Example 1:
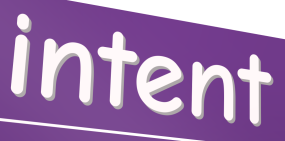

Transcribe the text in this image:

intent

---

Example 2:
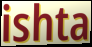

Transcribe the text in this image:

ishta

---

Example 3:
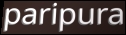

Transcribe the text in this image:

paripura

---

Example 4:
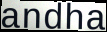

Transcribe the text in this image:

andha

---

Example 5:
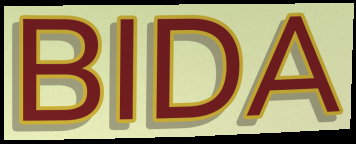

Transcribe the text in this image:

BIDA